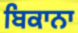
ਬਿਕਾਨਾ